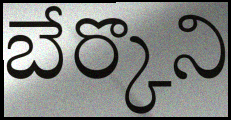
బేర్కొని